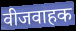
वीजवाहक